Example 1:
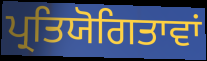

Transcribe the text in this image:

ਪ੍ਰਤਿਯੋਗਿਤਾਵਾਂ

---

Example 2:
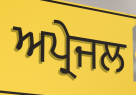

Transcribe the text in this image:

ਅਪ੍ਰੇਜਲ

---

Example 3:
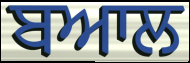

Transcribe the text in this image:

ਬਆਲ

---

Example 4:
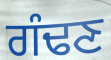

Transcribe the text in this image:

ਗੰਢਣ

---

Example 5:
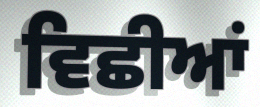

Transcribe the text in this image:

ਵਿਛੀਆਂ